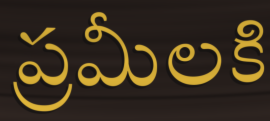
ప్రమీలకి